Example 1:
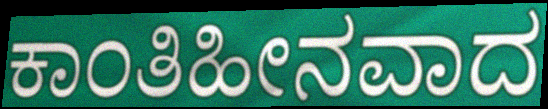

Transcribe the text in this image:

ಕಾಂತಿಹೀನವಾದ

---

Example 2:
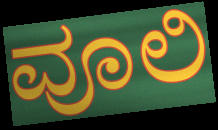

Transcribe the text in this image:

ವೂಲಿ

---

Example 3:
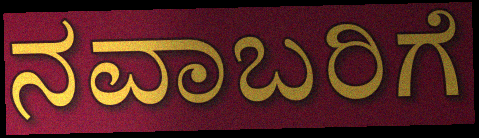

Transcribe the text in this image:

ನವಾಬರಿಗೆ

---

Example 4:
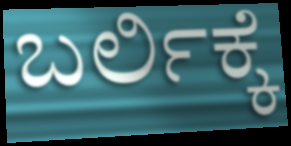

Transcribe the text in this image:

ಬರ್ಲಿಕ್ಕೆ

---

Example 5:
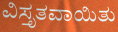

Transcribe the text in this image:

ವಿಸ್ತೃತವಾಯಿತು